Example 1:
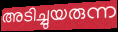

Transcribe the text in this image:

അടിച്ചുയരുന്ന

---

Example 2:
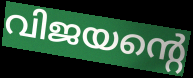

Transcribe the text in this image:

വിജയന്റെ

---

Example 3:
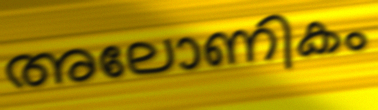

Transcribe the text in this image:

അലോണികം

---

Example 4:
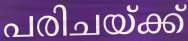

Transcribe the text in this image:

പരിചയ്ക്ക്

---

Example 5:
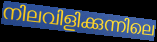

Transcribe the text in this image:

നിലവിളിക്കുന്നിലെ